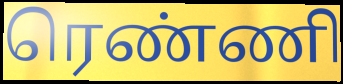
ரெண்ணி